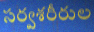
సర్వశరీరుల